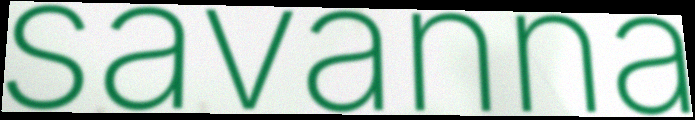
savanna